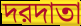
দরদাতা